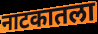
नाटकातला